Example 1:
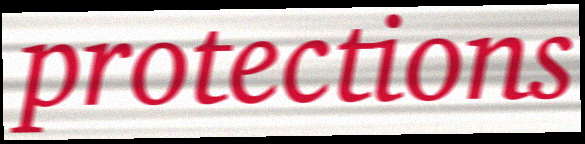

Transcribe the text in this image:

protections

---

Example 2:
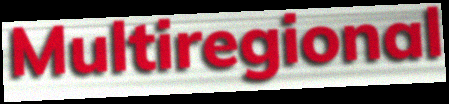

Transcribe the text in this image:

Multiregional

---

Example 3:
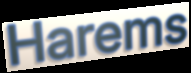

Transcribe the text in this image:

Harems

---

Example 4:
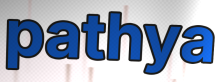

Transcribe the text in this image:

pathya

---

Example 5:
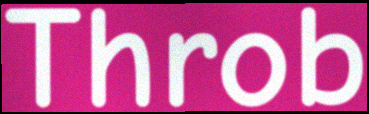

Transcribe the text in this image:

Throb